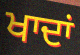
ਖਾਦਾਂ